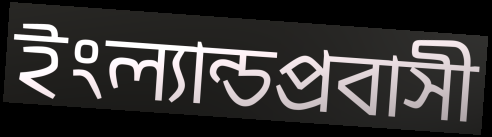
ইংল্যান্ডপ্রবাসী